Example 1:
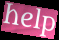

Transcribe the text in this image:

help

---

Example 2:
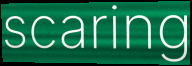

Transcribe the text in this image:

scaring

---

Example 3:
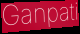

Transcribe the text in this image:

Ganpati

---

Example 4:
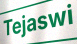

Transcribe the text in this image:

Tejaswi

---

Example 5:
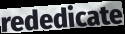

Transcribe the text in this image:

rededicate